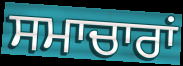
ਸਮਾਚਾਰਾਂ